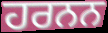
ਹਰਨਨ